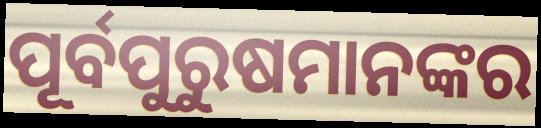
ପୂର୍ବପୁରୁଷମାନଙ୍କର